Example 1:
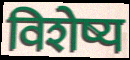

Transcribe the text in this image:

विशेष्य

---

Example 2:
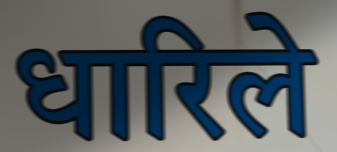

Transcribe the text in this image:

धारिले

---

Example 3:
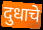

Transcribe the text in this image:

दुधाचे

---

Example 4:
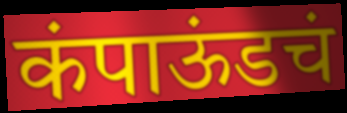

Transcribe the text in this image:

कंपाऊंडचं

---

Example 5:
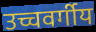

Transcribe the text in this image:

उच्चवर्गीय